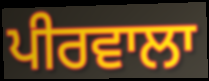
ਪੀਰਵਾਲਾ